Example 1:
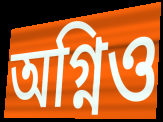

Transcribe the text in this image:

অগ্নিও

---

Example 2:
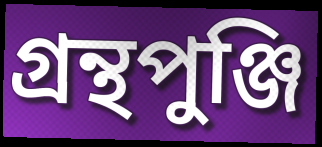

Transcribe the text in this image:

গ্রন্থপুঞ্জি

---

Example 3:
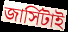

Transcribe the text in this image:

জার্সিটাই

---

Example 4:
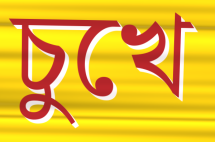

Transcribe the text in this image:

চুখে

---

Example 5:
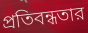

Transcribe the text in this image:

প্রতিবন্ধতার